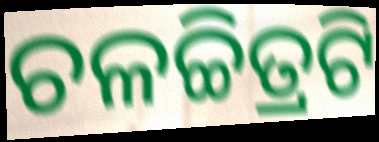
ଚଳଚ୍ଚିତ୍ରଟି